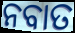
ନବାତ